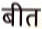
बीत